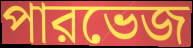
পারভেজ